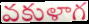
వకుళాగ